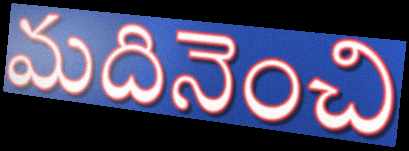
మదినెంచి